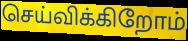
செய்விக்கிறோம்